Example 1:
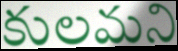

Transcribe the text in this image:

కులమని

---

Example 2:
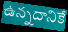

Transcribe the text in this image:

ఉన్నదానికే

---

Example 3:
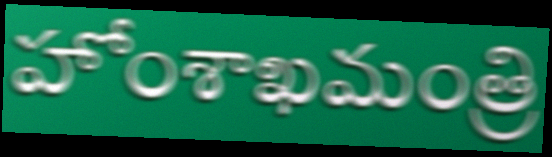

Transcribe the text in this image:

హోంశాఖమంత్రి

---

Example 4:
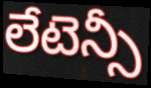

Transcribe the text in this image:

లేటెన్సీ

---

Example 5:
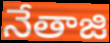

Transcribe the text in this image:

నేతాజి